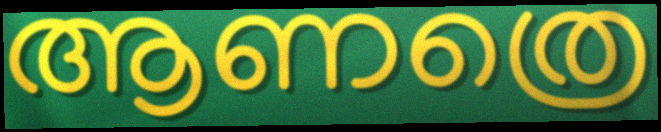
ആണത്രെ